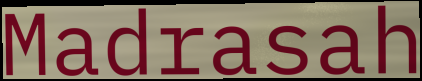
Madrasah